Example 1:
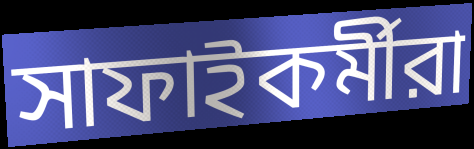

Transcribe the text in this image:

সাফাইকর্মীরা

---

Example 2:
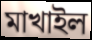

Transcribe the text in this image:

মাখাইল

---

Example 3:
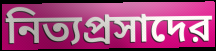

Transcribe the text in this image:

নিত্যপ্রসাদের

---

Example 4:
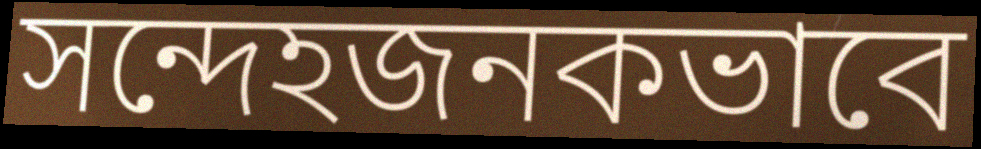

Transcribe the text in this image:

সন্দেহজনকভাবে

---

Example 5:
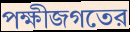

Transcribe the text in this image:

পক্ষীজগতের